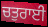
ਚਤੁਰਾਈ